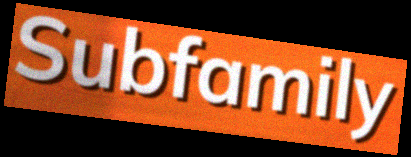
Subfamily